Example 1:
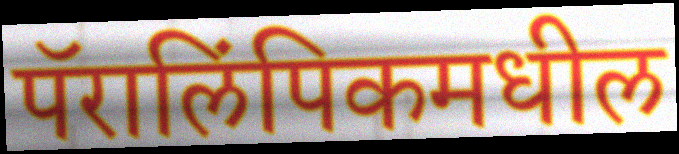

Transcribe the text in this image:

पॅरालिंपिकमधील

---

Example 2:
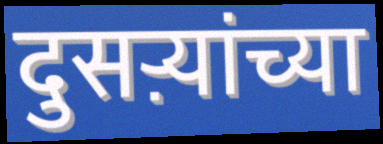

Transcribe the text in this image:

दुसऱ्‍यांच्या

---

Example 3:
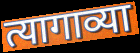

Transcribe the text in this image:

त्यागाव्या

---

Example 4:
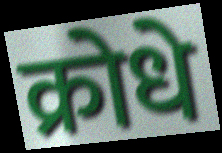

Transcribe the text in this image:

क्रोधे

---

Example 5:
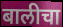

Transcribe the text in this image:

बालीचा